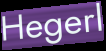
Hegerl